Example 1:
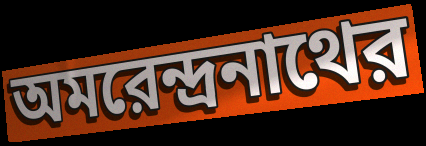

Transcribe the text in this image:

অমরেন্দ্রনাথের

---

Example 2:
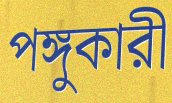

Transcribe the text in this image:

পঙ্গুকারী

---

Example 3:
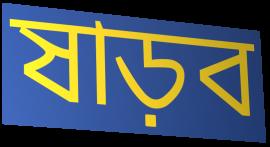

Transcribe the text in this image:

ষাড়ব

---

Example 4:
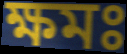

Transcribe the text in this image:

ক্ষমঃ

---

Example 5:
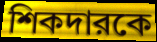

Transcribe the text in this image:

শিকদারকে